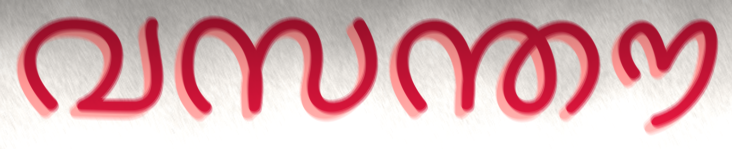
വസന്തൗ